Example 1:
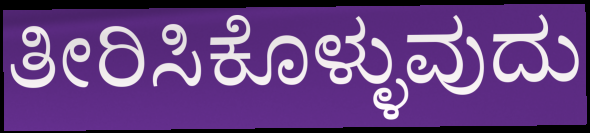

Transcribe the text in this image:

ತೀರಿಸಿಕೊಳ್ಳುವುದು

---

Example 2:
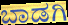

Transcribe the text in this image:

ಬಾಡಗಿ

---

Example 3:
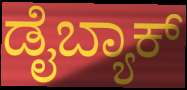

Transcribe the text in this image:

ಡೈಬ್ಯಾಕ್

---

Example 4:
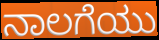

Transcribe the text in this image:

ನಾಲಗೆಯು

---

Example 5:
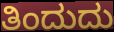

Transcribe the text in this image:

ತಿಂದುದು